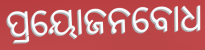
ପ୍ରୟୋଜନବୋଧ